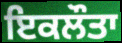
ਇਕਲੌਤਾ